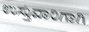
ಉಸ್ತುವಾರಿಗಾಗಿ